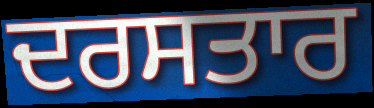
ਦਰਸਤਾਰ